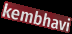
kembhavi